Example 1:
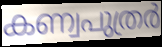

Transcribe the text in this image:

കണ്വപുത്രർ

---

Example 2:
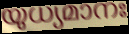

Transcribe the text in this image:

യുധ്യമാനഃ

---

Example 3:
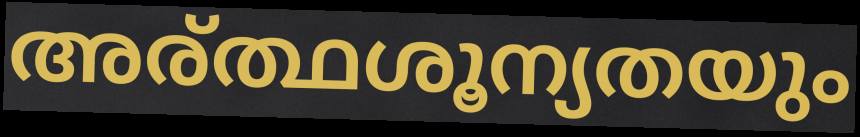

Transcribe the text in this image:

അര്ത്ഥശൂന്യതയും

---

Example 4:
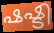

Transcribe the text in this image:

ഷഷ്ടി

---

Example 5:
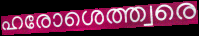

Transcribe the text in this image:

ഹരോശെത്ത്വരെ